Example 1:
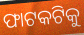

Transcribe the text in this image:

ଫାଟକଟିକୁ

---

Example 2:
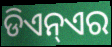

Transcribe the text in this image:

ଡିଏନ୍ଏର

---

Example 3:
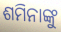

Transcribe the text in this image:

ଶମିନାଙ୍କୁ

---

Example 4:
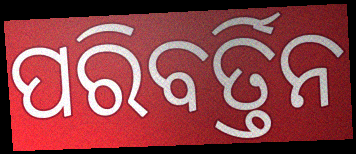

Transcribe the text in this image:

ପରିବର୍ତ୍ତିନ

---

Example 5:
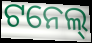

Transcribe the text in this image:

ଟନେଲ୍